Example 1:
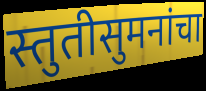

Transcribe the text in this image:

स्तुतीसुमनांचा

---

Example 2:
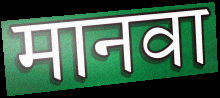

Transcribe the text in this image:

मानवा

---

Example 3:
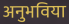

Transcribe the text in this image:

अनुभविया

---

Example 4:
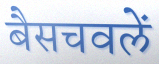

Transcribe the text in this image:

बैसचवलें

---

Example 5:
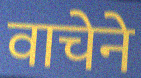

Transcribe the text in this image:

वाचेने